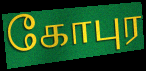
கோபுர